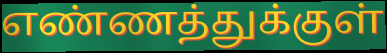
எண்ணத்துக்குள்